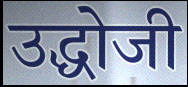
उद्धोजी